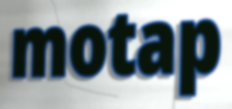
motap